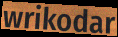
wrikodar